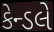
કેન્ડલે